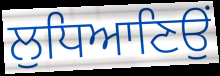
ਲੁਧਿਆਣਿਉਂ